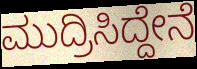
ಮುದ್ರಿಸಿದ್ದೇನೆ